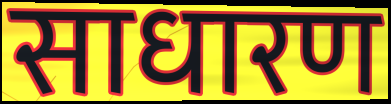
साधारण